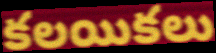
కలయికలు